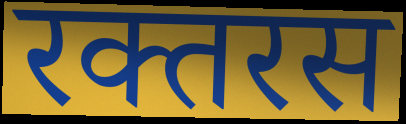
रक्तरस